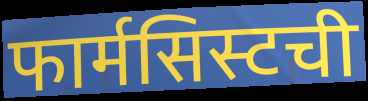
फार्मसिस्टची